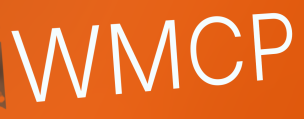
WMCP